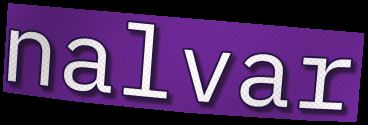
nalvar